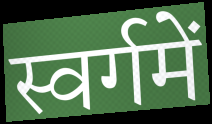
स्वर्गमें